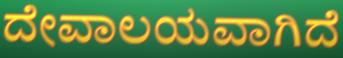
ದೇವಾಲಯವಾಗಿದೆ